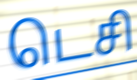
டெசி